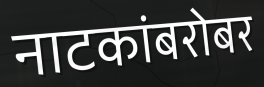
नाटकांबरोबर